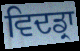
ਵਿਦਡ੍ਰਾ